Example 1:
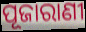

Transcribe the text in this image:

ପୂଜାରାଣୀ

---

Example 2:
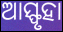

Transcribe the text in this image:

ଆସ୍ଫୃହା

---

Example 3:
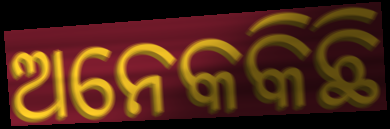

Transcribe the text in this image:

ଅନେକକିଛି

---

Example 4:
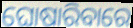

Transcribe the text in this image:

ଘୋଷାରିବାରେ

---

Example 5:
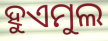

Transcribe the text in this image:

ହୁଏମୁଲ